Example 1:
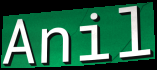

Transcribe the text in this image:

Anil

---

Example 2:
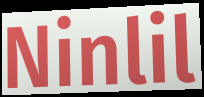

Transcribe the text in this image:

Ninlil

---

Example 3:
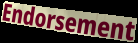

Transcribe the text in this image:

Endorsement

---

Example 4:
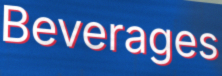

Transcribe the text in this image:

Beverages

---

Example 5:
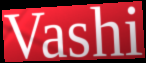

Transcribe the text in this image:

Vashi